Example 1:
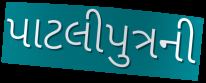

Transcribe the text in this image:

પાટલીપુત્રની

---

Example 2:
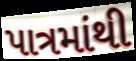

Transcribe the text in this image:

પાત્રમાંથી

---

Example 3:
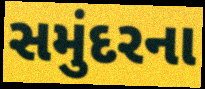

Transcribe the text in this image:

સમુંદરના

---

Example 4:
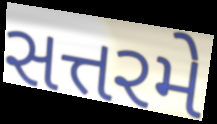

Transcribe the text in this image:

સત્તરમે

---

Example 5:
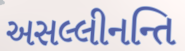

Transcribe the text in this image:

અસલ્લીનન્તિ